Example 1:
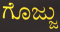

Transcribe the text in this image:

ಗೊಜ್ಜು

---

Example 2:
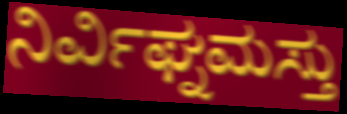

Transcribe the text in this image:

ನಿರ್ವಿಘ್ನಮಸ್ತು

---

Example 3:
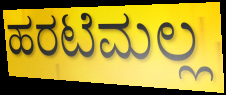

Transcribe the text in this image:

ಹರಟೆಮಲ್ಲ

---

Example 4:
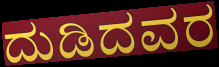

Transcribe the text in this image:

ದುಡಿದವರ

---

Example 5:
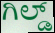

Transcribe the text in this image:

ಗಿಲ್ಡ್